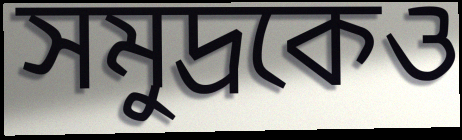
সমুদ্রকেও